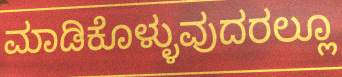
ಮಾಡಿಕೊಳ್ಳುವುದರಲ್ಲೂ